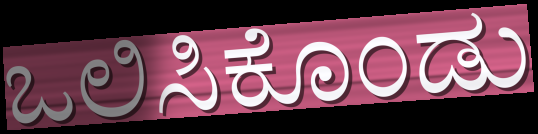
ಒಲಿಸಿಕೊಂಡು